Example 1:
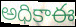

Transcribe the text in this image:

అధికాఈ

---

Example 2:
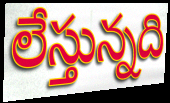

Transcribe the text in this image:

లేస్తున్నది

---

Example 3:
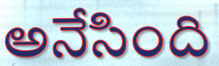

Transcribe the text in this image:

అనేసింది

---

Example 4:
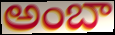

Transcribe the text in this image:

అంబా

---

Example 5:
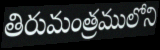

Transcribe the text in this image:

తిరుమంత్రములోని